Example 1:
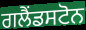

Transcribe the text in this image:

ਗਲੈਂਡਸਟੋਨ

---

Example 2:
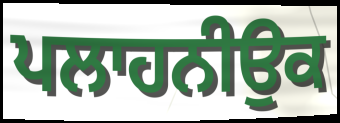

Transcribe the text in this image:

ਪਲਾਹਨੀਉਕ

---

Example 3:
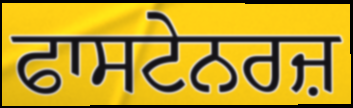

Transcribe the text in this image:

ਫਾਸਟੇਨਰਜ਼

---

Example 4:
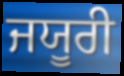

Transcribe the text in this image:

ਜਯੂਰੀ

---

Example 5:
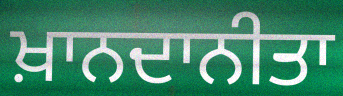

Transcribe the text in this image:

ਖ਼ਾਨਦਾਨੀਤਾ